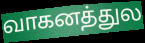
வாகனத்துல